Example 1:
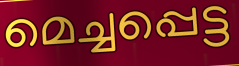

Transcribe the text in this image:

മെച്ചപ്പെട്ട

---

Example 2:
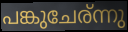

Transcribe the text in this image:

പങ്കുചേര്ന്നു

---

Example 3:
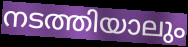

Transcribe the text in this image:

നടത്തിയാലും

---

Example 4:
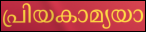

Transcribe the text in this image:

പ്രിയകാമ്യയാ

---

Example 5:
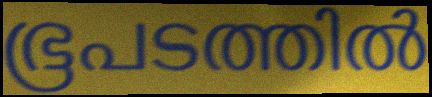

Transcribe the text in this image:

ഭൂപടത്തിൽ